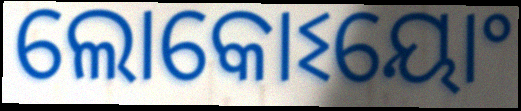
ଲୋକୋଽୟୋଂ